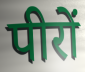
पीरों